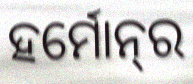
ହର୍ମୋନ୍‌ର